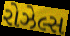
રોઝેલ્સ